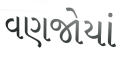
વણજોયાં